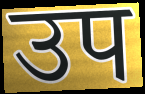
उप